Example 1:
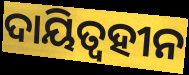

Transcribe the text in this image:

ଦାୟିତ୍ଵହୀନ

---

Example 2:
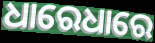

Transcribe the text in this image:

ଧାରେଧାରେ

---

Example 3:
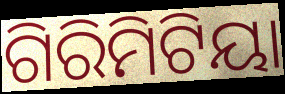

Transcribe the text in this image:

ଗିରିମିଟିୟା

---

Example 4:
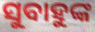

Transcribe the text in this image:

ସୁବାହୁଙ୍କ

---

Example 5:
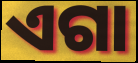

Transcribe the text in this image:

ଏଗା